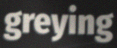
greying